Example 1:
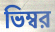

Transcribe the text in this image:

ভিম্বর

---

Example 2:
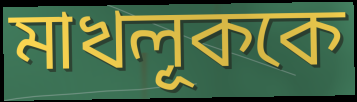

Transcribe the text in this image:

মাখলূককে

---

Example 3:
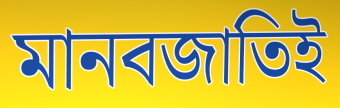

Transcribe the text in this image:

মানবজাতিই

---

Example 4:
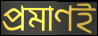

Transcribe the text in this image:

প্রমাণই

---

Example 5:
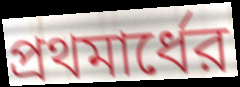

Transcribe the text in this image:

প্রথমার্ধের